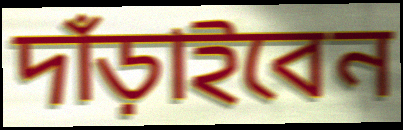
দাঁড়াইবেন